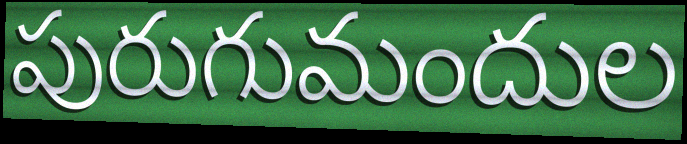
పురుగుమందుల